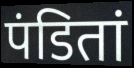
पंडितां